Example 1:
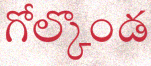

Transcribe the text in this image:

గోల్కొండ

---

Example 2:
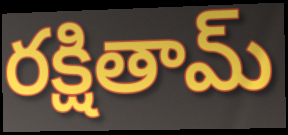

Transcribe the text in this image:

రక్షితామ్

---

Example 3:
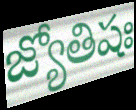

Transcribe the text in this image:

జ్యోతిషః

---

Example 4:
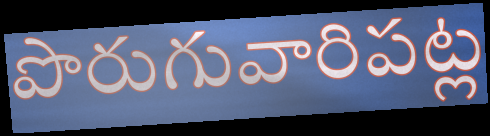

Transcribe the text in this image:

పొరుగువారిపట్ల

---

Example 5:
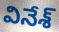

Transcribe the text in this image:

వినేశ్